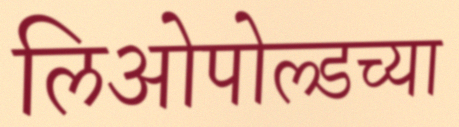
लिओपोल्डच्या